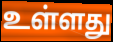
உள்ளது